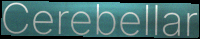
Cerebellar